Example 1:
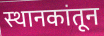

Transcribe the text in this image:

स्थानकांतून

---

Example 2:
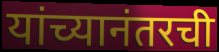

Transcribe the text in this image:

यांच्यानंतरची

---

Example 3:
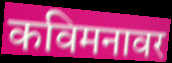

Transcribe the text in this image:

कविमनावर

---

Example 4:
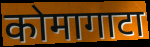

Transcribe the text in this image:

कोमागाटा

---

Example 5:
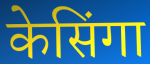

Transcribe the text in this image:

केसिंगा